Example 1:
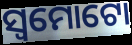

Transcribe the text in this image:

ସ୍ୱମୋଟୋ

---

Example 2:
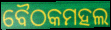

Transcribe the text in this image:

ବୈଠକମହଲ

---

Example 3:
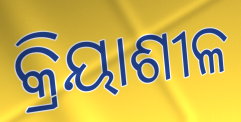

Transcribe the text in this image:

କ୍ରିୟାଶୀଳ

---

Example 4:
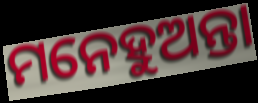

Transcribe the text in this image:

ମନେହୁଅନ୍ତା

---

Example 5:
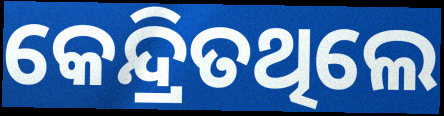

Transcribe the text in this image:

କେନ୍ଦ୍ରିତଥିଲେ